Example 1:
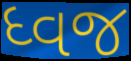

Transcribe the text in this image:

ધ્વજ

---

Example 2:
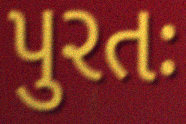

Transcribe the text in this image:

પુરતઃ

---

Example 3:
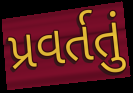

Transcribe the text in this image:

પ્રવર્તતું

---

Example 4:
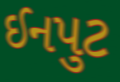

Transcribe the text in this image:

ઈનપુટ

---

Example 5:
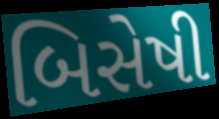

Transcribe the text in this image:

બિસેષી